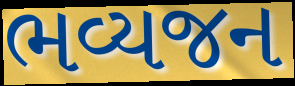
ભવ્યજન